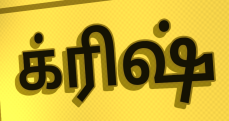
க்ரிஷ்